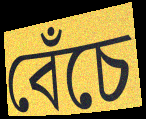
বেঁচে